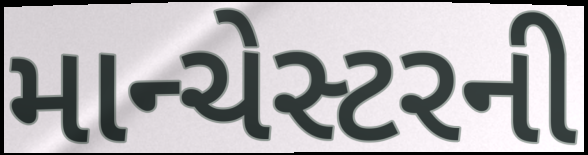
માન્ચેસ્ટરની